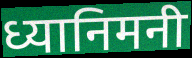
ध्यानिमनी